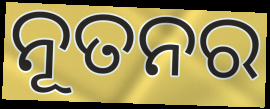
ନୂତନର